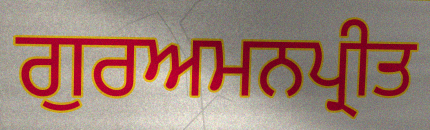
ਗੁਰਅਮਨਪ੍ਰੀਤ